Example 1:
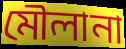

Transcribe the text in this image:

মৌলানা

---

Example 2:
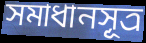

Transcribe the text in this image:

সমাধানসূত্ৰ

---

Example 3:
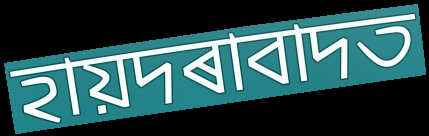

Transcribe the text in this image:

হায়দৰাবাদত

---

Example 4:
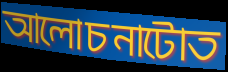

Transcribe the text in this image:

আলোচনাটোত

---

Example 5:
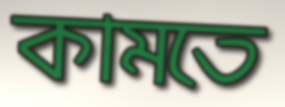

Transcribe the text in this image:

কামতে